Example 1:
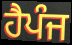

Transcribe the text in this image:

ਹੈਪੰਜ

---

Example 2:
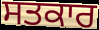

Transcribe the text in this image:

ਸਤਕਾਰ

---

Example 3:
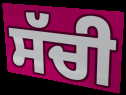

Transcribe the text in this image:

ਸੱਚੀ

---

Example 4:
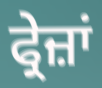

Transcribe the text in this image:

ਫ੍ਰੇਜ਼ਾਂ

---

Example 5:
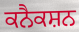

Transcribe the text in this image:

ਕਨੈਕਸ਼ਨ